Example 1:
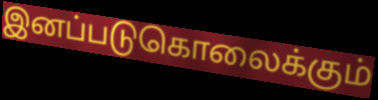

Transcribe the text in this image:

இனப்படுகொலைக்கும்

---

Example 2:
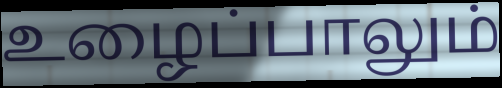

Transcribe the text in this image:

உழைப்பாலும்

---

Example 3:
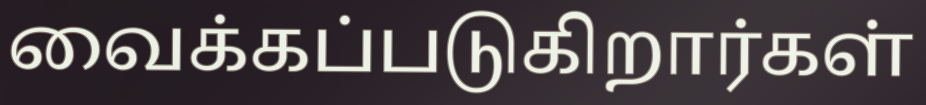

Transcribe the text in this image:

வைக்கப்படுகிறார்கள்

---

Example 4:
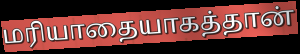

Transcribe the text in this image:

மரியாதையாகத்தான்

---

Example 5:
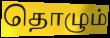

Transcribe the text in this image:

தொழும்